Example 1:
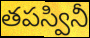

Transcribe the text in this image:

తపస్వినీ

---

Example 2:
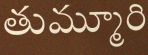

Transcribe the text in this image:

తుమ్మూరి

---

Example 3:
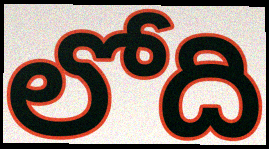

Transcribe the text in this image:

లోది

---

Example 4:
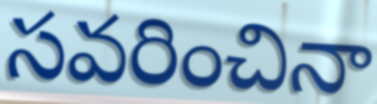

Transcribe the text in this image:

సవరించినా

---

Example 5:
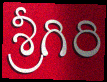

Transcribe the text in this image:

శ్రీగిరి